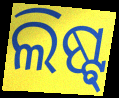
ଲିଷ୍ଟ୍